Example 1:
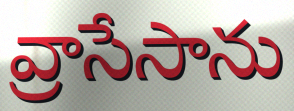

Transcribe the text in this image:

వ్రాసేసాను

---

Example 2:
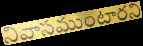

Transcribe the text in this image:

నివాసముంటారని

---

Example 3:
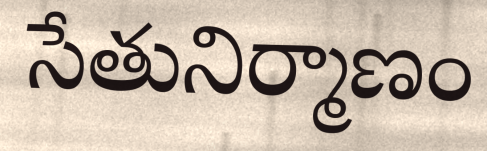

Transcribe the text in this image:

సేతునిర్మాణం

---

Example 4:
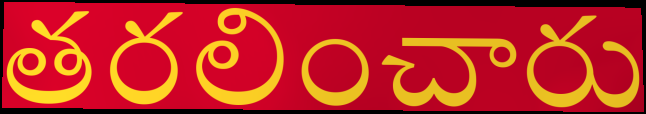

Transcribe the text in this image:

తరలించారు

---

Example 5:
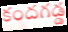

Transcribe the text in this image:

కందగడ్డ